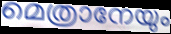
മെത്രാനേയും